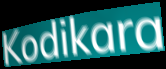
Kodikara